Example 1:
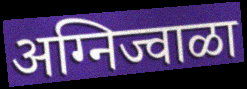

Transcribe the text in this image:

अग्निज्वाळा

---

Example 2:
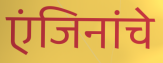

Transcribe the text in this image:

एंजिनांचे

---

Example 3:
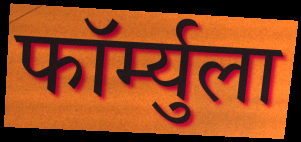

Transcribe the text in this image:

फॉर्म्युला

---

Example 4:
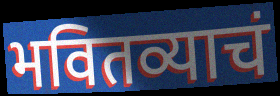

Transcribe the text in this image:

भवितव्याचं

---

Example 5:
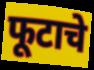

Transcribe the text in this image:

फूटाचे